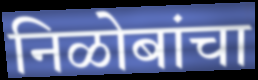
निळोबांचा